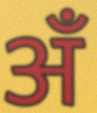
अँ